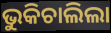
ଭୁକିଚାଲିଲା